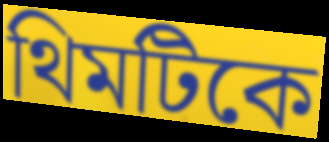
থিমটিকে